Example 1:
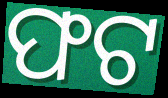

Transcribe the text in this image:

ଫଟ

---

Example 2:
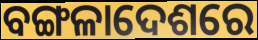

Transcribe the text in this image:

ବଙ୍ଗଳାଦେଶରେ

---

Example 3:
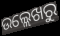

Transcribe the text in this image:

ଉଲ୍ଲେଖରୁ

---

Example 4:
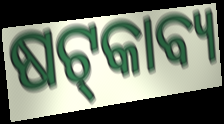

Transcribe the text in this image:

ଷଟ୍‌କାବ୍ୟ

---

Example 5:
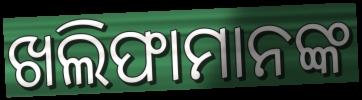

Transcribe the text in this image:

ଖଲିଫାମାନଙ୍କ